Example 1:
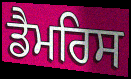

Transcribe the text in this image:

ਡੈਮਰਿਸ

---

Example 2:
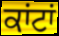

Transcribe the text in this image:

ਕਾਂਟਾਂ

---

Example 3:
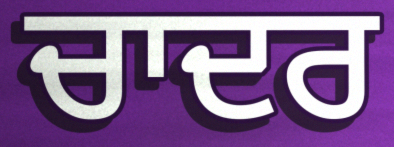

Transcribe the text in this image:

ਚਾਦਰ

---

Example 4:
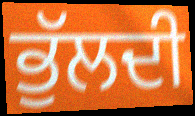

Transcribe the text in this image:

ਭੁੱਲਦੀ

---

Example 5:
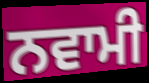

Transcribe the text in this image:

ਨਵਾਮੀ